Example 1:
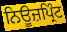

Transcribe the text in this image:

ਨਿਊਜ਼ਪ੍ਰਿੰਟ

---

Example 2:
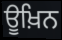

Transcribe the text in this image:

ਊਖ਼ਿਨ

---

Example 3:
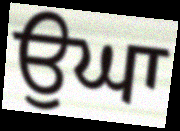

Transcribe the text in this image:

ਉਘਾ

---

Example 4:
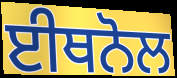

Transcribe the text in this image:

ਈਥਨੋਲ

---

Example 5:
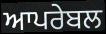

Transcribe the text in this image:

ਆਪਰੇਬਲ